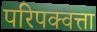
परिपक्वत्ता